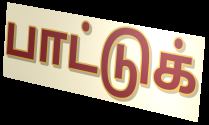
பாட்டுக்